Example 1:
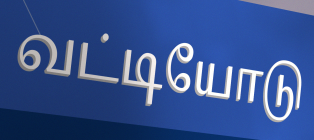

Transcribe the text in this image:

வட்டியோடு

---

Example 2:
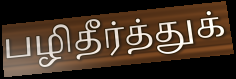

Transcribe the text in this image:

பழிதீர்த்துக்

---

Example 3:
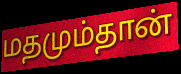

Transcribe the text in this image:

மதமும்தான்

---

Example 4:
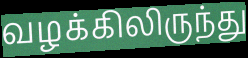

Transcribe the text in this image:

வழக்கிலிருந்து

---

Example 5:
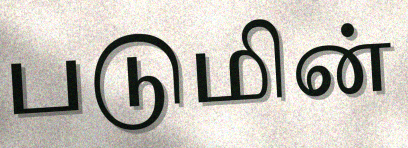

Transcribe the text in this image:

படுமின்